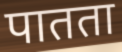
पातता